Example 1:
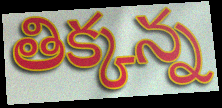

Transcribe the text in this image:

తిక్కన్న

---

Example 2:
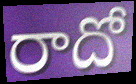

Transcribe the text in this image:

రాదో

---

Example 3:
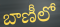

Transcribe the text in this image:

బాణీలో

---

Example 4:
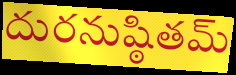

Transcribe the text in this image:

దురనుష్ఠితమ్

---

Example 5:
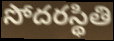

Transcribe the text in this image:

సోదరస్థితి